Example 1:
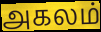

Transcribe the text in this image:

அகலம்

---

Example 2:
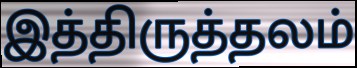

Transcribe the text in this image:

இத்திருத்தலம்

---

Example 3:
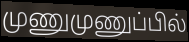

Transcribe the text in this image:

முணுமுணுப்பில்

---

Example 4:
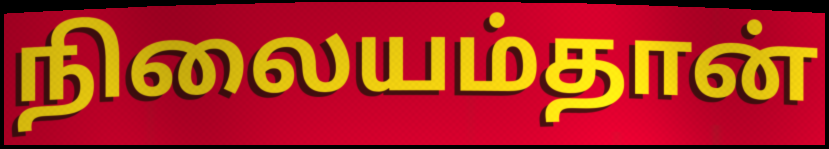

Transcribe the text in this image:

நிலையம்தான்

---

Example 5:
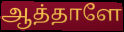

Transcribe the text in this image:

ஆத்தாளே